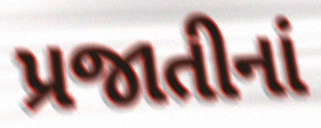
પ્રજાતીનાં